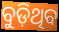
ବୁଡ଼ିଥିବ